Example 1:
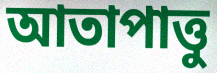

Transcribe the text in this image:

আতাপাত্তু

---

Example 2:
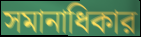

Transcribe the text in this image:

সমানাধিকার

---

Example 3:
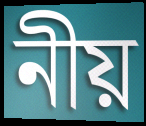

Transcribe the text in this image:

নীয়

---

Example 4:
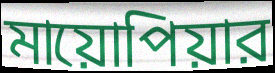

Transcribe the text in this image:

মায়োপিয়ার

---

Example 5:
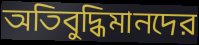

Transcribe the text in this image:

অতিবুদ্ধিমানদের